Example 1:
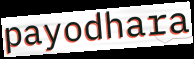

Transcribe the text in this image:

payodhara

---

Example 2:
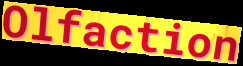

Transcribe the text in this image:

Olfaction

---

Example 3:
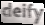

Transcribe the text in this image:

deify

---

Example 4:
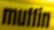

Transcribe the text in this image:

muffin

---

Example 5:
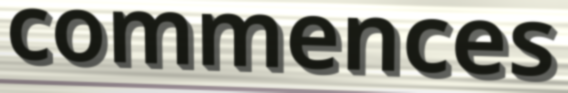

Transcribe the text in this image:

commences